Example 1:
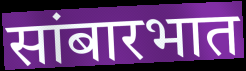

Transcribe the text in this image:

सांबारभात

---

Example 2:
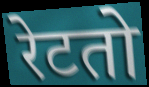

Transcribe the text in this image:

रेटतो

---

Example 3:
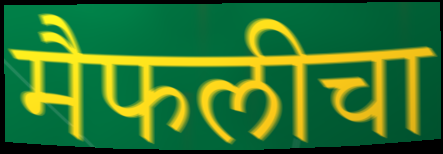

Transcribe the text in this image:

मैफलीचा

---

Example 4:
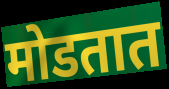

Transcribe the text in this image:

मोडतात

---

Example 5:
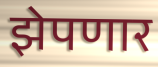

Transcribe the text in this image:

झेपणार